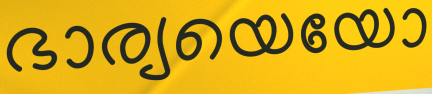
ഭാര്യയെയോ